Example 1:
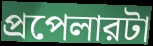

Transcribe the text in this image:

প্রপেলারটা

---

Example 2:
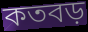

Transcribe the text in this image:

কতবড়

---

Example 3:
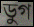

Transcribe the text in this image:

ডুগ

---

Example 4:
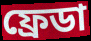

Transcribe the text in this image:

ফ্রেডা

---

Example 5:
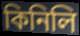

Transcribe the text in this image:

কিনিলি